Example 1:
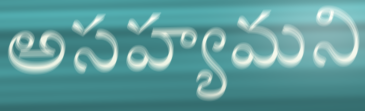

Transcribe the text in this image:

అసహ్యమని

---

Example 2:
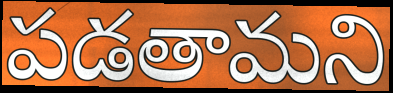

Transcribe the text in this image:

పడతామని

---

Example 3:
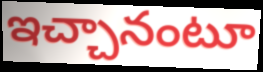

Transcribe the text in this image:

ఇచ్చానంటూ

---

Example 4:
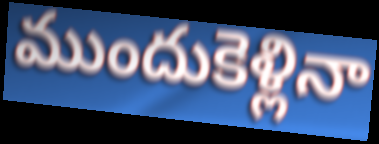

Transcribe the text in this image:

ముందుకెళ్లినా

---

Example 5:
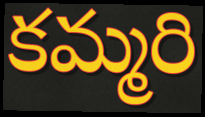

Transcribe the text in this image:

కమ్మరి